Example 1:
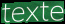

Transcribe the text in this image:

texte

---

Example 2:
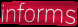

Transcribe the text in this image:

informs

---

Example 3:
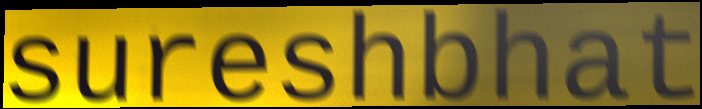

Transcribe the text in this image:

sureshbhat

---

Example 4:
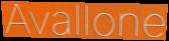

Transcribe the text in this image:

Avallone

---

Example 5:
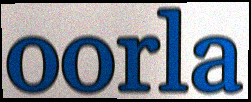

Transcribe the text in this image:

oorla